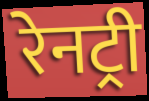
रेनट्री